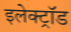
इलेक्ट्रॉड